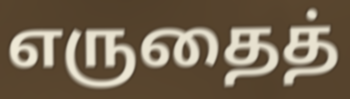
எருதைத்